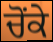
ਚੋਂਕੇ